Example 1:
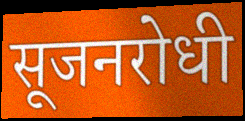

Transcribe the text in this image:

सूजनरोधी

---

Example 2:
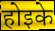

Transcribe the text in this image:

होइके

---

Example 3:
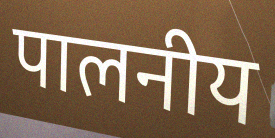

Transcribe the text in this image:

पालनीय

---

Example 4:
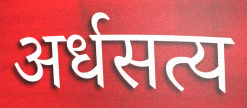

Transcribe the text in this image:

अर्धसत्य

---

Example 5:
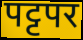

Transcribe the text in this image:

पट्टपर